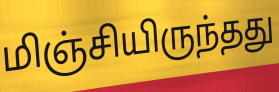
மிஞ்சியிருந்தது